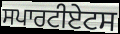
ਸਪਾਰਟੀਏਟਸ